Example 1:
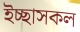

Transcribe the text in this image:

ইচ্ছাসকল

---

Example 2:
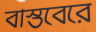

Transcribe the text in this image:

বাস্তবেরে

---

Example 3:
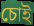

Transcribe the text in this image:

চোই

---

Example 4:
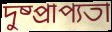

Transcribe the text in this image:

দুষ্প্রাপ্যতা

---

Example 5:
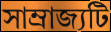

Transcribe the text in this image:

সাম্রাজ্যটি